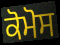
ਕੋਮੋਸ